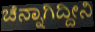
ಚೆನ್ನಾಗಿದ್ದೀನಿ